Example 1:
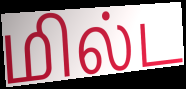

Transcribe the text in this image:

மில்ட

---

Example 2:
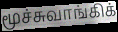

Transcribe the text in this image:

மூச்சுவாங்கிக்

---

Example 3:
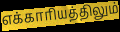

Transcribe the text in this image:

எக்காரியத்திலும்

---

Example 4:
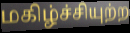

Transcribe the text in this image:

மகிழ்ச்சியுற்ற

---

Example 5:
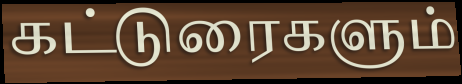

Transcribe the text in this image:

கட்டுரைகளும்